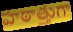
హఠాత్తుగా